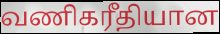
வணிகரீதியான